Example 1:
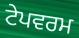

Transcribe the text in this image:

ਟੇਪਵਰਮ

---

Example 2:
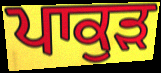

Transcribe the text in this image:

ਪਾਕੁੜ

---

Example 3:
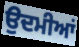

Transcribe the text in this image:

ਉਦਮੀਆਂ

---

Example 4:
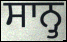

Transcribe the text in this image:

ਸਾਨ੍ਤ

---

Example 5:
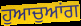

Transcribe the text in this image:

ਹੁਆਚੁਆਂਗ